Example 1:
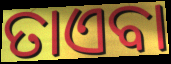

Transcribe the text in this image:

ତାଏବା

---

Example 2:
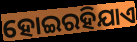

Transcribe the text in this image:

ହୋଇରହିଯାଏ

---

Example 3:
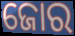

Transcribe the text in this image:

ଜୋର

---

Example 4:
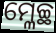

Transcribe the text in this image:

ମ୍ଳେଚ୍ଛ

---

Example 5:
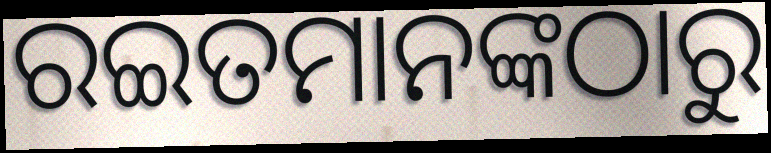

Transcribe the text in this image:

ରଇତମାନଙ୍କଠାରୁ